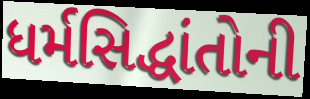
ધર્મસિદ્ધાંતોની